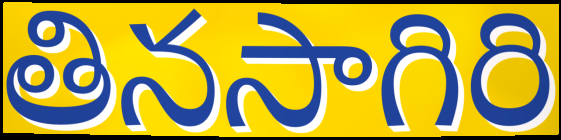
తినసాగిరి